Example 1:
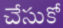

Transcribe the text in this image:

చేసుకో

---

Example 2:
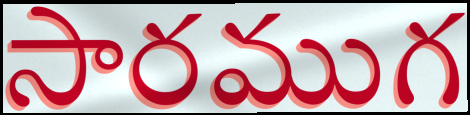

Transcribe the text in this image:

సారముగ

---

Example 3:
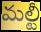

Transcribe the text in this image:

మల్టీ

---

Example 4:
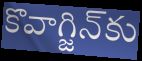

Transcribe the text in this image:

కొవాగ్జిన్‌కు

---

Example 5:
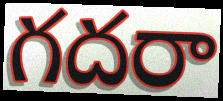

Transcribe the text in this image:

గదరా